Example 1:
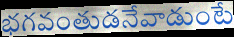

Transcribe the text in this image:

భగవంతుడనేవాడుంటే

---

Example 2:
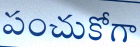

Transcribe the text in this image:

పంచుకోగా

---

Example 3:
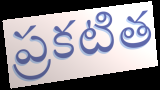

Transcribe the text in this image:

ప్రకటిత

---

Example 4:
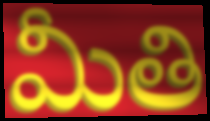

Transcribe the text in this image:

మీతి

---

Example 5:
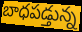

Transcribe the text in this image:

బాధపడ్తున్న